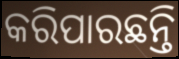
କରିପାରଛନ୍ତି